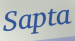
Sapta